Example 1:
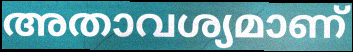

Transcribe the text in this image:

അതാവശ്യമാണ്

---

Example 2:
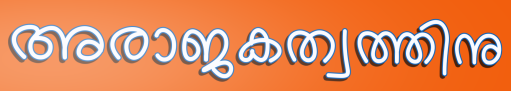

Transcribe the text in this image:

അരാജകത്വത്തിനു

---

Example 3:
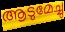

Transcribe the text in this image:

ആടുമേച്ചു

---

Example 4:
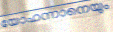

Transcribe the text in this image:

യോഹന്നാനെയും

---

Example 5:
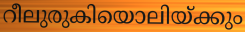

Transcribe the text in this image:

റീലുരുകിയൊലിയ്ക്കും